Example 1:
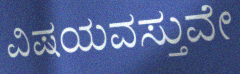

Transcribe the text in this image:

ವಿಷಯವಸ್ತುವೇ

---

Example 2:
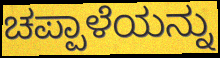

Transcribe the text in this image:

ಚಪ್ಪಾಳೆಯನ್ನು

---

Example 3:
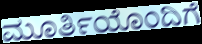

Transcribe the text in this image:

ಮೂರ್ತಿಯೊಂದಿಗೆ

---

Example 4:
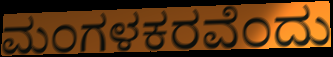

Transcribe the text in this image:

ಮಂಗಳಕರವೆಂದು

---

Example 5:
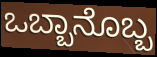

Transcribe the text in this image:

ಒಬ್ಬಾನೊಬ್ಬ